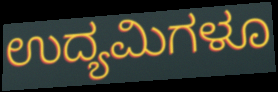
ಉದ್ಯಮಿಗಳೂ